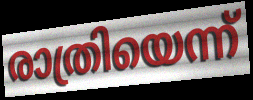
രാത്രിയെന്ന്